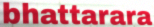
bhattarara